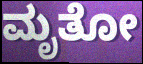
ಮೃತೋ